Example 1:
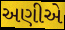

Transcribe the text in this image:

અણીએ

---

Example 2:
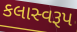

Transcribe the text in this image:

કલાસ્વરૂપ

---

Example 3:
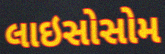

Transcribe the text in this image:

લાઇસોસોમ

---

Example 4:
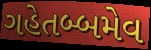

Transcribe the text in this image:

ગહેતબ્બમેવ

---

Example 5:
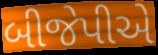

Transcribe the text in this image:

બીજેપીએ